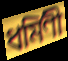
ধর্মিণী